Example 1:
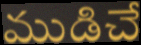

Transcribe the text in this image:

ముడిచే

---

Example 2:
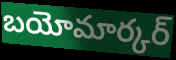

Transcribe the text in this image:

బయోమార్కర్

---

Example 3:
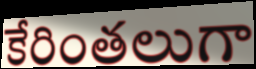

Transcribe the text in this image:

కేరింతలుగా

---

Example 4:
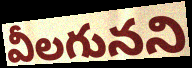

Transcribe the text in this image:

వీలగునని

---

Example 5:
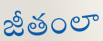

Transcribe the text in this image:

జీతంలా